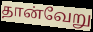
தான்வேறு